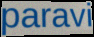
paravi